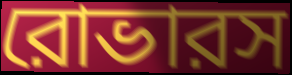
রোভারস